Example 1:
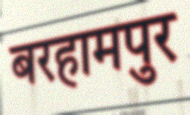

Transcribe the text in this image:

बरहामपुर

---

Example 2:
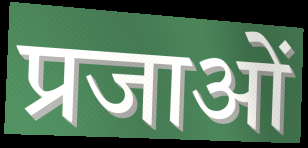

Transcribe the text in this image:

प्रजाओं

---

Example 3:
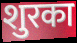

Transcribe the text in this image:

शुरका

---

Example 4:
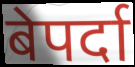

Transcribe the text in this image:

बेपर्दा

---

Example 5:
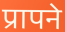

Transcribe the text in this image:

प्रापने